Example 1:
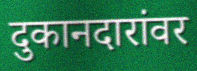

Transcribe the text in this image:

दुकानदारांवर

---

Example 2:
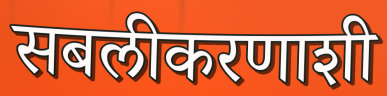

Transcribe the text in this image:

सबलीकरणाशी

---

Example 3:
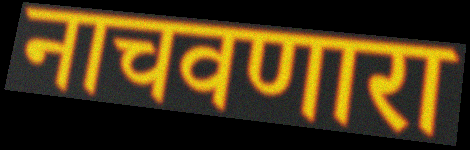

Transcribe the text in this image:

नाचवणारा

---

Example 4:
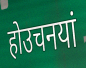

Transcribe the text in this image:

होउचनयां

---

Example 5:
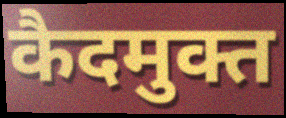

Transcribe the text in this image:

कैदमुक्त